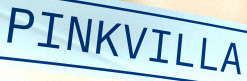
PINKVILLA